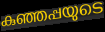
കുഞ്ഞപ്പയുടെ